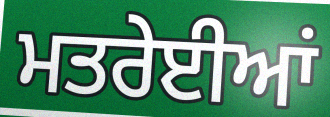
ਮਤਰੇਈਆਂ